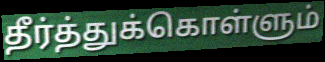
தீர்த்துக்கொள்ளும்